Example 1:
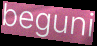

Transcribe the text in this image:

beguni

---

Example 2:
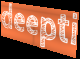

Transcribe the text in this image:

deepti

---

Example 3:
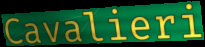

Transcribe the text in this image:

Cavalieri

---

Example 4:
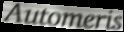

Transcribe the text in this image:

Automeris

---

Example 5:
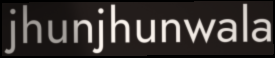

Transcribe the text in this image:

jhunjhunwala